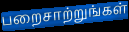
பறைசாற்றுங்கள்